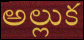
అల్లుక